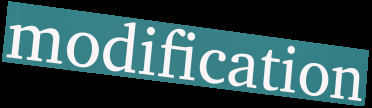
modification